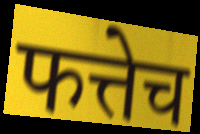
फत्तेच